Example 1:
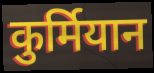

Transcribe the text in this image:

कुर्मियान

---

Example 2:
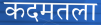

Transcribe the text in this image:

कदमतला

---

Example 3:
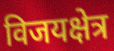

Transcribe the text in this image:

विजयक्षेत्र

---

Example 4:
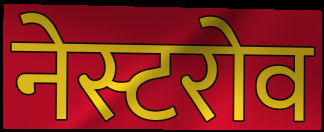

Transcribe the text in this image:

नेस्टरोव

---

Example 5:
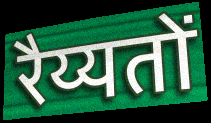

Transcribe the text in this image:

रैय्यतों